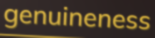
genuineness